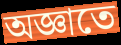
অজ্ঞাতে